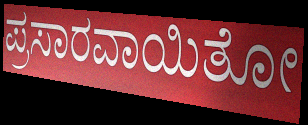
ಪ್ರಸಾರವಾಯಿತೋ